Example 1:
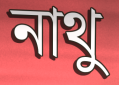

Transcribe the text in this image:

নাথু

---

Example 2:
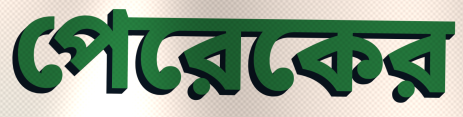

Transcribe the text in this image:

পেরেকের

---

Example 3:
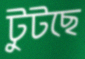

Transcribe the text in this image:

টুটছে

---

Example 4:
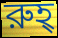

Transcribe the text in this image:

রুহ্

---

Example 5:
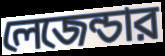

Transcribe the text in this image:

লেজেন্ডার